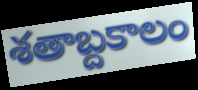
శతాబ్దకాలం